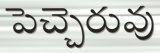
పెచ్చెరువు